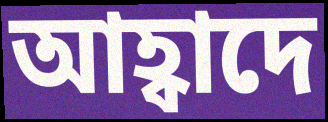
আহ্বাদে